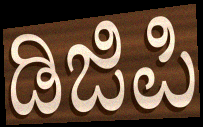
ಡಿಜಿಪಿ